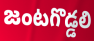
జంటగొడ్డలి